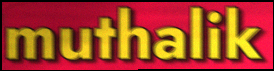
muthalik